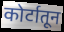
कोर्टातून